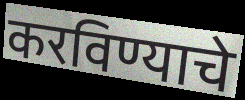
करविण्याचे